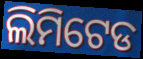
ଲିମିଟେଡ